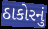
ઠાકોરનું